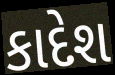
કાદેશ